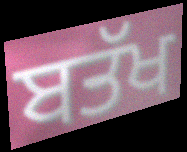
ਬਤੱਖ